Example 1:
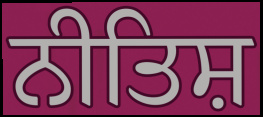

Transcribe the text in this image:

ਨੀਤਿਸ਼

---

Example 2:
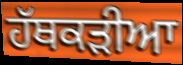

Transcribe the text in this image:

ਹੱਥਕੜੀਆ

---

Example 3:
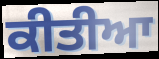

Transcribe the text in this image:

ਕੀਤੀਆ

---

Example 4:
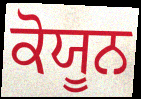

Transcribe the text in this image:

ਕੋਯੂਨ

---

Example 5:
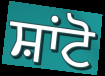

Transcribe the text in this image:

ਸ਼ਾਂਟੋ